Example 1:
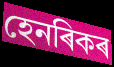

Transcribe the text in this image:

হেনৰিকৰ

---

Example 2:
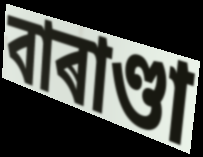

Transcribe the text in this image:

বাৰাণ্ডা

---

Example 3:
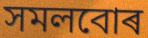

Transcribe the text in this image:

সমলবোৰ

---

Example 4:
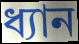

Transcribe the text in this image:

ধ্যান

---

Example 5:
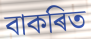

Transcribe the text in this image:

বাকৰিত